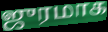
ஜுரமாக